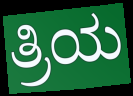
ತ್ರಿಯ